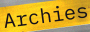
Archies